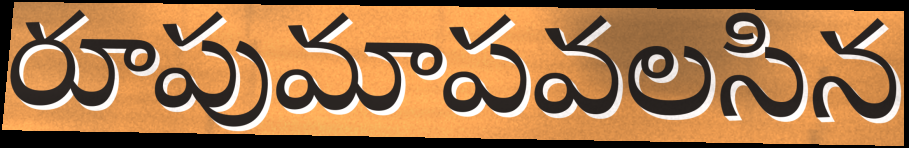
రూపుమాపవలసిన